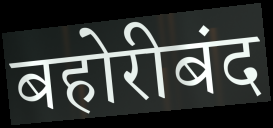
बहोरीबंद